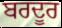
ਬਰਦੂਰ